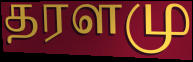
தரளமு